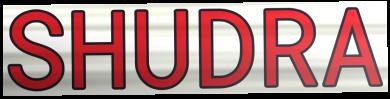
SHUDRA